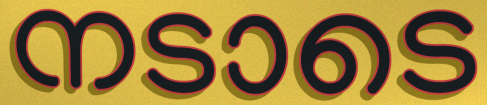
നടാടെ